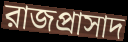
রাজপ্রাসাদ